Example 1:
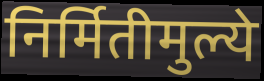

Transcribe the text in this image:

निर्मितीमुल्ये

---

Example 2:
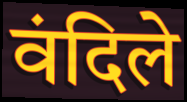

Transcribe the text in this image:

वंदिले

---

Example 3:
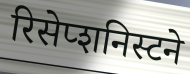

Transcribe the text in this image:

रिसेप्शनिस्टने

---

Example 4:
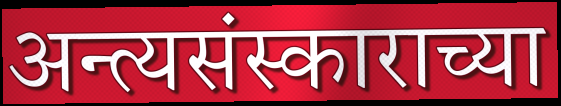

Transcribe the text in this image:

अन्त्यसंस्काराच्या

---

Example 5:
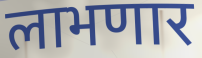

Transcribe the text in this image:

लाभणार